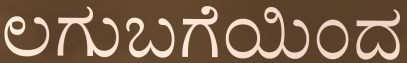
ಲಗುಬಗೆಯಿಂದ